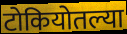
टोकियोतल्या